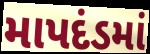
માપદંડમાં